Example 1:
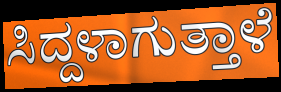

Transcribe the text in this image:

ಸಿದ್ದಳಾಗುತ್ತಾಳೆ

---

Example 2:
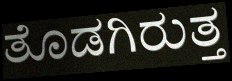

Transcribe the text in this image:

ತೊಡಗಿರುತ್ತ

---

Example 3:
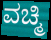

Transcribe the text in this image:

ವಚ್ಮಿ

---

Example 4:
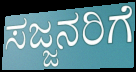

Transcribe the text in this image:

ಸಜ್ಜನರಿಗೆ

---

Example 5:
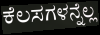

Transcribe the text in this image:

ಕೆಲಸಗಳನ್ನೆಲ್ಲ